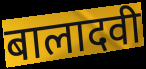
बालादवी